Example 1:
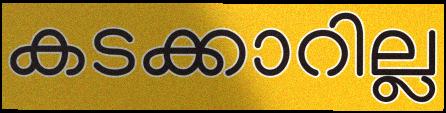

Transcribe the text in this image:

കടക്കാറില്ല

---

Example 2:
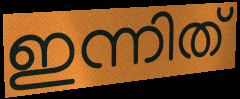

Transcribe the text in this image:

ഇന്നിത്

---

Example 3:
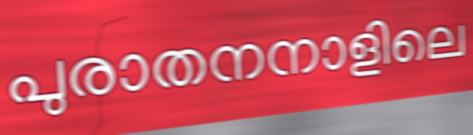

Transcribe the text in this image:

പുരാതനനാളിലെ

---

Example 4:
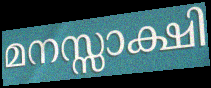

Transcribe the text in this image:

മനസ്സാക്ഷി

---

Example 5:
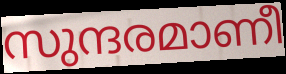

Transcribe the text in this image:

സുന്ദരമാണീ